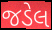
જડેલ